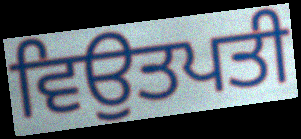
ਵਿਉਤਪਤੀ